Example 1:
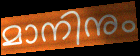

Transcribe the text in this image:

മാനിനും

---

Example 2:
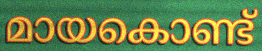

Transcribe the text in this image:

മായകൊണ്ട്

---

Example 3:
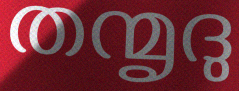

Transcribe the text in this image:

തന്മൃദു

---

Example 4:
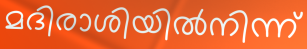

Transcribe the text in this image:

മദിരാശിയിൽനിന്ന്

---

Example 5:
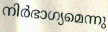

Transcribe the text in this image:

നിർഭാഗ്യമെന്നു